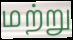
மற்று